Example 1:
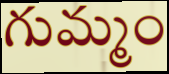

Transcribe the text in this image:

గుమ్మం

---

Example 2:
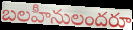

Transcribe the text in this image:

బలహీనులందరూ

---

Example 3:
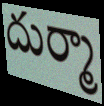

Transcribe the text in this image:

దుర్మా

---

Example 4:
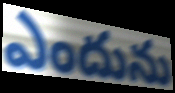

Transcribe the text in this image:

ఎందును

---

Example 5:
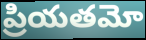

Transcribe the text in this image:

ప్రియతమో